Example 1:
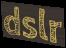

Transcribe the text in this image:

dslr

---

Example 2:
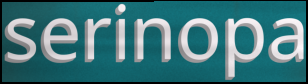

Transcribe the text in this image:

serinopa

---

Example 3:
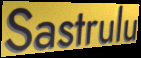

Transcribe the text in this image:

Sastrulu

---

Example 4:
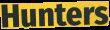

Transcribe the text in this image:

Hunters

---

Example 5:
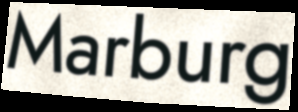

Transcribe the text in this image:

Marburg